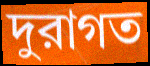
দুরাগত